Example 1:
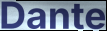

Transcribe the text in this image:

Dante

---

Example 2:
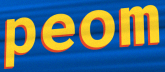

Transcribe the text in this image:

peom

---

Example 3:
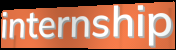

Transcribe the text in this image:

internship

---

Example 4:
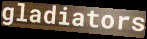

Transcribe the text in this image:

gladiators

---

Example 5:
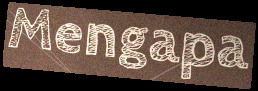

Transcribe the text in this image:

Mengapa